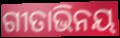
ଗୀତାଭିନୟ